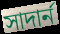
সাদার্ন